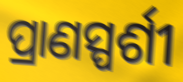
ପ୍ରାଣସ୍ପର୍ଶୀ